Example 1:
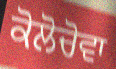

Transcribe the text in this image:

ਕੋਲੋਚੋਵਾ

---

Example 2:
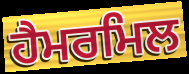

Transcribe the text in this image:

ਹੈਮਰਮਿਲ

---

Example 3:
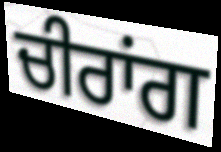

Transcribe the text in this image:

ਚੀਰਾਂਗ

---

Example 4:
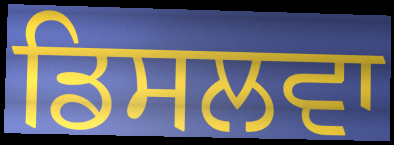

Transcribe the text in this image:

ਡਿਸਲਵਾ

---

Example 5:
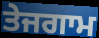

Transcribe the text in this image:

ਤੇਜਗਾਮ